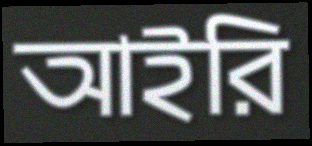
আইরি